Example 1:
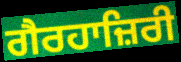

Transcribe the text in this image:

ਗੈਰਹਾਜ਼ਿਰੀ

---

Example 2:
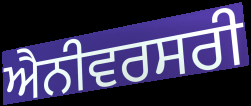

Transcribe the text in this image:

ਐਨੀਵਰਸਰੀ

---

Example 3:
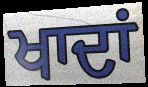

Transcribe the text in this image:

ਖਾਦਾਂ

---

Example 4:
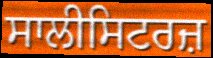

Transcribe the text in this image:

ਸਾਲੀਸਿਟਰਜ਼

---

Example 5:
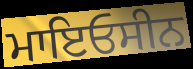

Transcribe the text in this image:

ਮਾਇਓਸੀਨ